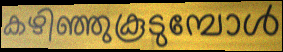
കഴിഞ്ഞുകൂടുമ്പോൾ